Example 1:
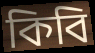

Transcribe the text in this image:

কিবি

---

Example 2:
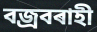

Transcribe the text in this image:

বজ্ৰবৰাহী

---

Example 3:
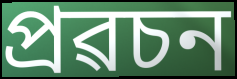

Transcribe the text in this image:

প্ৰৱচন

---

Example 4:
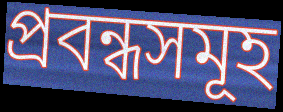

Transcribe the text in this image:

প্ৰবন্ধসমূহ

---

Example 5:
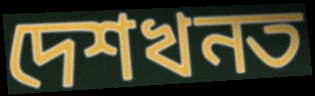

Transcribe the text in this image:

দেশখনত